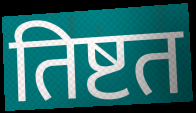
तिष्टत